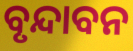
ବୃନ୍ଦାବନ